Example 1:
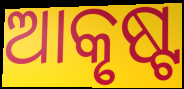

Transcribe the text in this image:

ଆକୃଷ୍ଟ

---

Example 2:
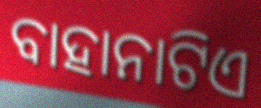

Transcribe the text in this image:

ବାହାନାଟିଏ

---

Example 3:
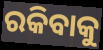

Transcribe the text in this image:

ରକିବାକୁ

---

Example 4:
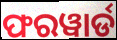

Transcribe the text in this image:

ଫରୱାର୍ଡ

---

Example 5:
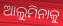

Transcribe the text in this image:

ଆଲୁମିନାକୁ